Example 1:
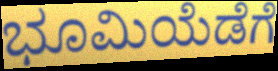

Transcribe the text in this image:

ಭೂಮಿಯೆಡೆಗೆ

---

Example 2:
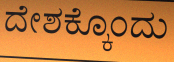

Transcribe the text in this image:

ದೇಶಕ್ಕೊಂದು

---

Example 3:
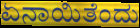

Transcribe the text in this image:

ಏನಾಯಿತೆಂದು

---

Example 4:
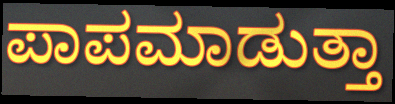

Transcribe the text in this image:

ಪಾಪಮಾಡುತ್ತಾ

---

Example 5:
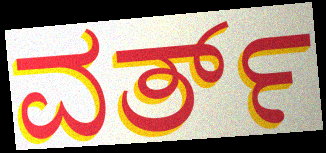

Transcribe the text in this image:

ವರ್ತ್